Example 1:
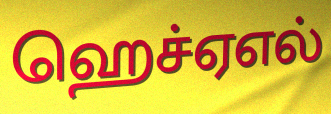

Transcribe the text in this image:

ஹெச்ஏஎல்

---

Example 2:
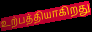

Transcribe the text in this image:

உற்பத்தியாகிறது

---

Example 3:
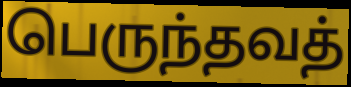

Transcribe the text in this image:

பெருந்தவத்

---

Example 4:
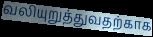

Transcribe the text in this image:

வலியுறுத்துவதற்காக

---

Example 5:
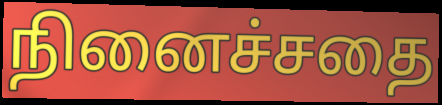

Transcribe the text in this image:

நினைச்சதை